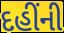
દહીંની